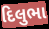
દિલુભા